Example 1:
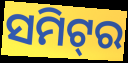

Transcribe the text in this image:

ସମିଟ୍‌ର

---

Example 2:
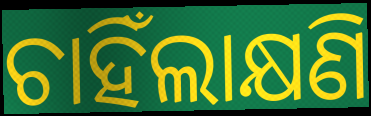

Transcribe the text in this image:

ଚାହିଁଲାକ୍ଷଣି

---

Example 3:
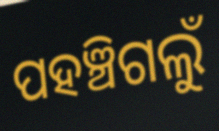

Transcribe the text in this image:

ପହଞ୍ଚିଗଲୁଁ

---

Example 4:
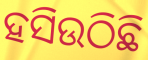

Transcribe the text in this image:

ହସିଉଠିଛି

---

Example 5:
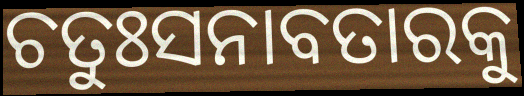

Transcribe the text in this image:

ଚତୁଃସନାବତାରକୁ